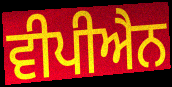
ਵੀਪੀਐਨ